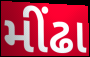
મીંઢા